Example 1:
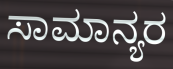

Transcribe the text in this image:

ಸಾಮಾನ್ಯರ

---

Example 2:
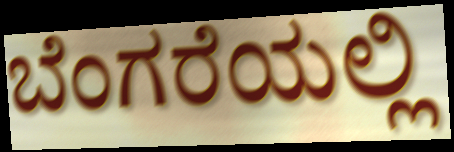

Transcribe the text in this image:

ಬೆಂಗರೆಯಲ್ಲಿ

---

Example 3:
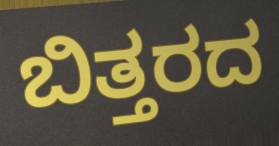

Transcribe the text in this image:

ಬಿತ್ತರದ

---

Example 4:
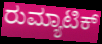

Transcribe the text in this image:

ರುಮ್ಯಾಟಿಕ್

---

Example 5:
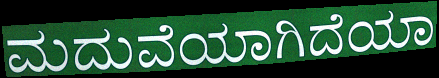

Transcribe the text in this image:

ಮದುವೆಯಾಗಿದೆಯಾ